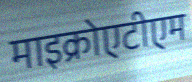
माइक्रोएटीएम